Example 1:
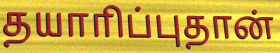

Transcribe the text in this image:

தயாரிப்புதான்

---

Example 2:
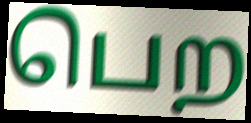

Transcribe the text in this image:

பெற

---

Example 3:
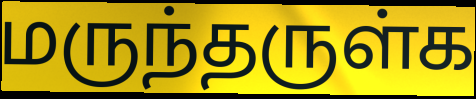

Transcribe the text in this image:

மருந்தருள்க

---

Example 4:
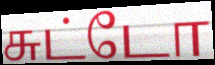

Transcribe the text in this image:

சுட்டோ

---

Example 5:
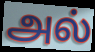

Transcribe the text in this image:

அல்